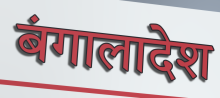
बंगालादेश